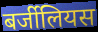
बर्जीलियस